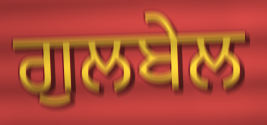
ਗੁਲਬੇਲ